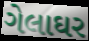
ગેલાઘર